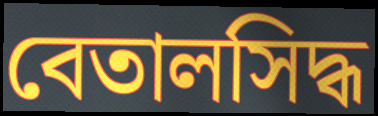
বেতালসিদ্ধ